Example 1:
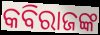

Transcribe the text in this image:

କବିରାଜଙ୍କ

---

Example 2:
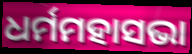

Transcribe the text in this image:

ଧର୍ମମହାସଭା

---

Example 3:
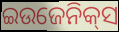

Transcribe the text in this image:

ଇଉଜେନିକ୍‌ସ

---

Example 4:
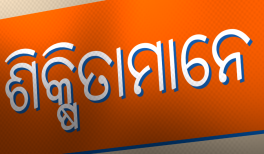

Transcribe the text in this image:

ଶିକ୍ଷିତାମାନେ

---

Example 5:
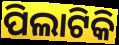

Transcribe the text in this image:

ପିଲାଟିକି